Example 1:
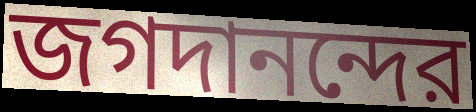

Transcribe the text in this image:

জগদানন্দের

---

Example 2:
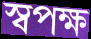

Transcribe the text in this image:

স্বপক্ষ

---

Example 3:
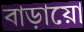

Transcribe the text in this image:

বাড়ায়ো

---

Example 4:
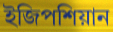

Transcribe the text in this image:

ইজিপশিয়ান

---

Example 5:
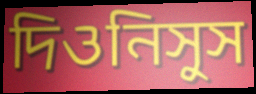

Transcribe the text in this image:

দিওনিসুস